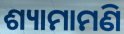
ଶ୍ୟାମାମଣି